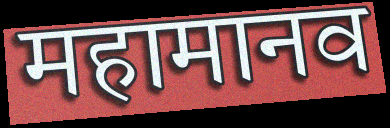
महामानव